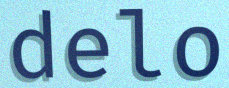
delo